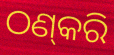
ଠଣ୍‌କରି